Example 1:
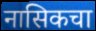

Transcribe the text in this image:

नासिकचा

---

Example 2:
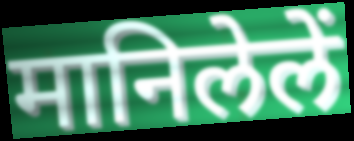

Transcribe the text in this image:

मानिलेलें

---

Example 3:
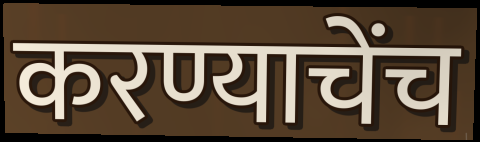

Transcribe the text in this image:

करण्याचेंच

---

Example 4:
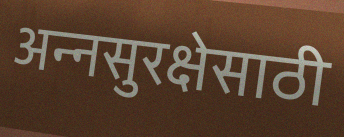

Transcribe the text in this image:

अन्नसुरक्षेसाठी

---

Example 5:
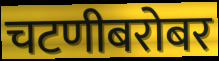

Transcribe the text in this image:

चटणीबरोबर